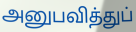
அனுபவித்துப்